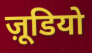
ज़ूडियो